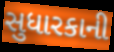
સુધારકાની